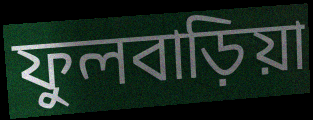
ফুলবাড়িয়া